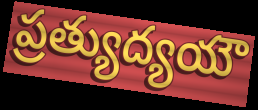
ప్రత్యుద్యయౌ